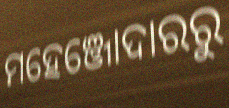
ମହେଞ୍ଜୋଦାରରୁ